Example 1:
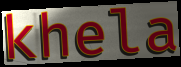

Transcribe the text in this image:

khela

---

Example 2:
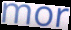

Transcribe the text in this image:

mor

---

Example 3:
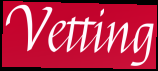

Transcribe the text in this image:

Vetting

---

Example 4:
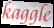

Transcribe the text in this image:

kaggle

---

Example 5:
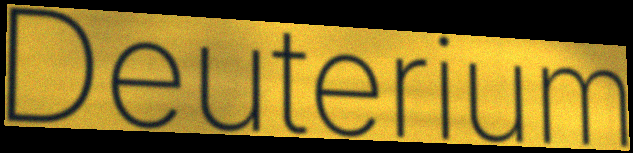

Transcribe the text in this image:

Deuterium